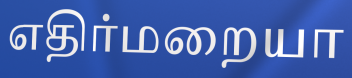
எதிர்மறையா